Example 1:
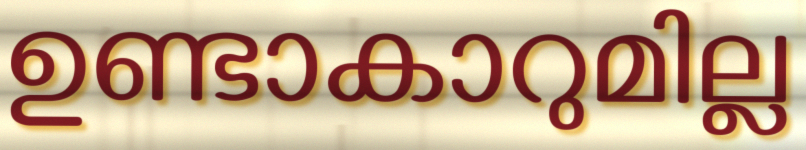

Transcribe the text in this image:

ഉണ്ടാകാറുമില്ല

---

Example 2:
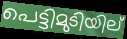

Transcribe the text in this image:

പെട്ടിമുടിയില്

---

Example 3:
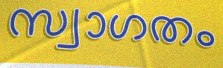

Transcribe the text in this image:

സ്വാഗതം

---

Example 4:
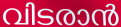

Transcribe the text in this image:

വിടരാൻ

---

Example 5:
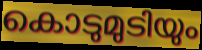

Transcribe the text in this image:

കൊടുമുടിയും